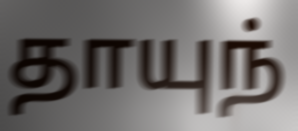
தாயுந்